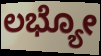
ಲಭ್ಯೋ